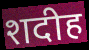
शदीह